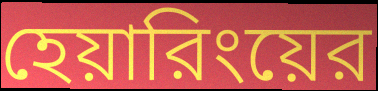
হেয়ারিংয়ের